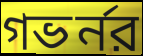
গভর্নর